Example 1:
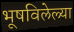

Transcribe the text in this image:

भूषविलेल्या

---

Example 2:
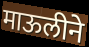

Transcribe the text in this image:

माऊलीने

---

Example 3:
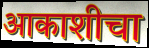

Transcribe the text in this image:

आकाशीचा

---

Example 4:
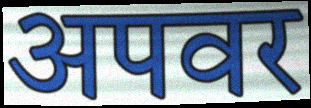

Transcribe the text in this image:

अपवर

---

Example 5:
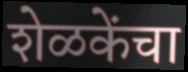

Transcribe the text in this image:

शेळकेंचा